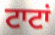
ਟਾਟਾਂ